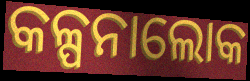
କଳ୍ପନାଲୋକ